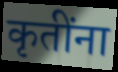
कृतींना